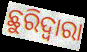
ଛୁରିଦ୍ୱାରା